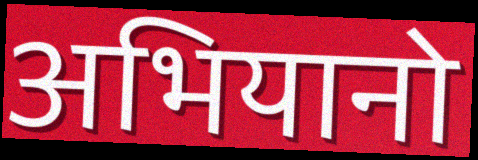
अभियानो